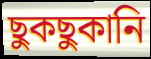
ছুকছুকানি